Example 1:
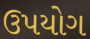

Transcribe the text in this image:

ઉપયોગ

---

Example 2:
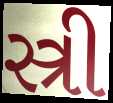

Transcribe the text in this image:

સ્ત્રી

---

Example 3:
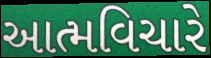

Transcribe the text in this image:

આત્મવિચારે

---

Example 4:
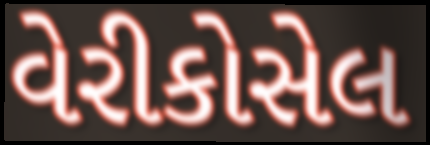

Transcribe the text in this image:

વેરીકોસેલ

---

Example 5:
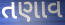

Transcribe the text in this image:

તણાવ